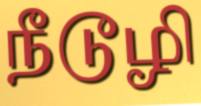
நீடூழி